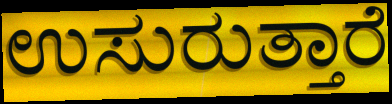
ಉಸುರುತ್ತಾರೆ